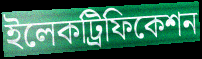
ইলেকট্রিফিকেশন